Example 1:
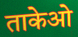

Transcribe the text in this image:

ताकेओ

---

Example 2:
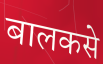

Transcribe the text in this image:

बालकसे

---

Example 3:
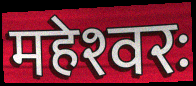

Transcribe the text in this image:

महेश्वरः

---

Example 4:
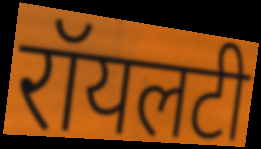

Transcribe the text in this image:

रॉयलटी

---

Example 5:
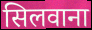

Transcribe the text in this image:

सिलवाना